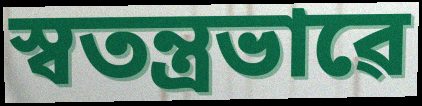
স্বতন্ত্ৰভাৱে